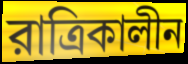
রাত্রিকালীন